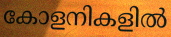
കോളനികളിൽ